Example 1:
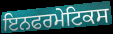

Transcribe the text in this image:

ਇਨਫਰਮੇਟਿਕਸ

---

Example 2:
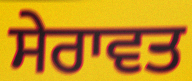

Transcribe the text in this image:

ਸੇਰਾਵਤ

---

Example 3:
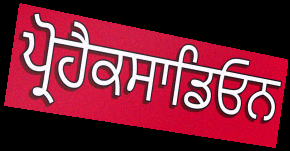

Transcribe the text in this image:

ਪ੍ਰੋਹੈਕਸਾਡਿਓਨ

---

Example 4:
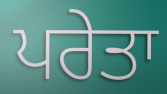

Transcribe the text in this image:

ਪਰੇਤਾ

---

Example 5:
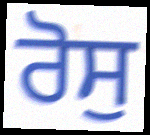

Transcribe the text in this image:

ਰੋਸੁ